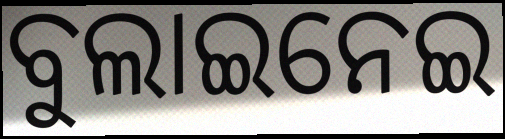
ବୁଲାଇନେଇ